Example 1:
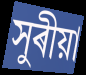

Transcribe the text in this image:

সুৰীয়া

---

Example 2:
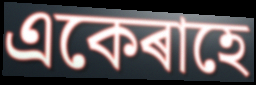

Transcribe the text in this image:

একেৰাহে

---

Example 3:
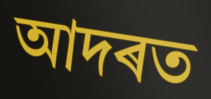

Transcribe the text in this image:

আদৰত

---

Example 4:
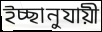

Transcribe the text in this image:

ইচ্ছানুযায়ী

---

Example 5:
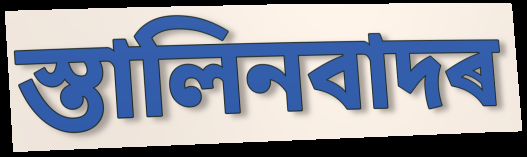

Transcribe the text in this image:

স্তালিনবাদৰ